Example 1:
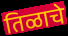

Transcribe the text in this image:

तिळाचे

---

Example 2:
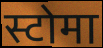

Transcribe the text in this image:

स्टोमा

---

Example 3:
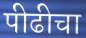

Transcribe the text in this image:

पीढीचा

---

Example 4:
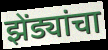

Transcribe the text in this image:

झेंड्यांचा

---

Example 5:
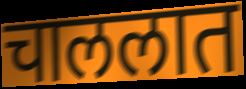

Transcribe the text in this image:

चाललात